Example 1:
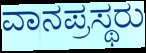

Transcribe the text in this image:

ವಾನಪ್ರಸ್ಥರು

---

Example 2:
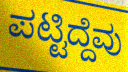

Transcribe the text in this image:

ಪಟ್ಟಿದ್ದೆವು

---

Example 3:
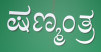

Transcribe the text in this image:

ಷಣ್ಮಂತ್ರ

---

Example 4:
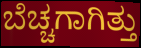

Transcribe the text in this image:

ಬೆಚ್ಚಗಾಗಿತ್ತು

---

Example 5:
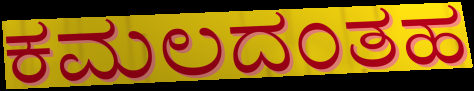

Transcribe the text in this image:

ಕಮಲದಂತಹ